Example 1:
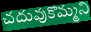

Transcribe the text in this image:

చదువుకొమ్మని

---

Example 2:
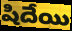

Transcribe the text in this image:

షిదేయి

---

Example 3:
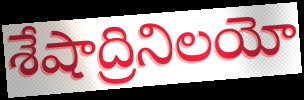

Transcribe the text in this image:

శేషాద్రినిలయో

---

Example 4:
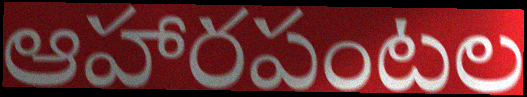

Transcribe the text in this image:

ఆహారపంటల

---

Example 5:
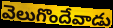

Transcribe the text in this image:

వెలుగొందేవాడు